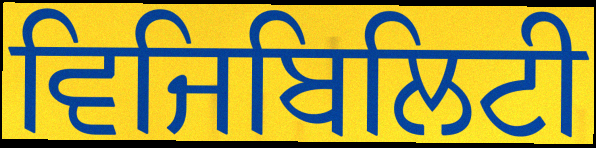
ਵਿਜਿਬਿਲਿਟੀ